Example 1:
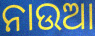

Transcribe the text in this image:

ନାଉଆ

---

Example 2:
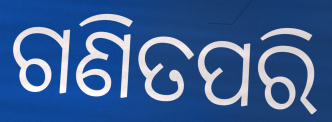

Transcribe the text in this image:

ଗଣିତପରି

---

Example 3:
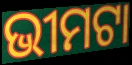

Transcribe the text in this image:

ଭୀମଟା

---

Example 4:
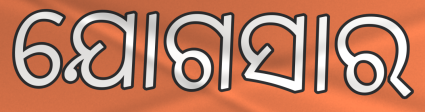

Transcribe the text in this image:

ଯୋଗସାର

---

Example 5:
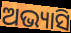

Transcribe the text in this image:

ଅଭ୍ୟାସି